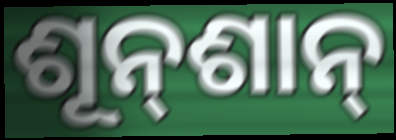
ଶୂନ୍‌ଶାନ୍